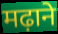
मढ़ाने